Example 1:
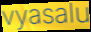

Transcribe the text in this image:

vyasalu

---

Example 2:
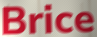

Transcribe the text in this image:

Brice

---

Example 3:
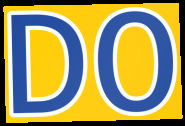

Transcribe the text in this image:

DO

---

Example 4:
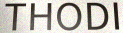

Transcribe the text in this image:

THODI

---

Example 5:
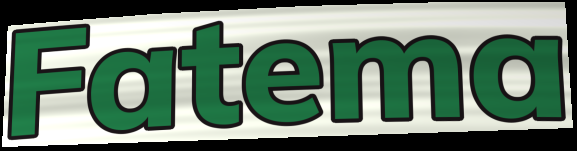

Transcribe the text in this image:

Fatema